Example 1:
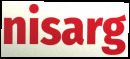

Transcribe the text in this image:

nisarg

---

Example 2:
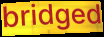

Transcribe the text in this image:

bridged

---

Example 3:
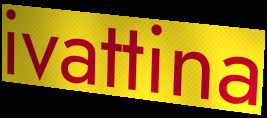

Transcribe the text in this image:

ivattina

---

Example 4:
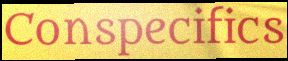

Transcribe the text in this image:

Conspecifics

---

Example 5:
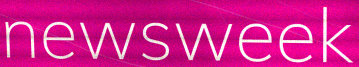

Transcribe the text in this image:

newsweek